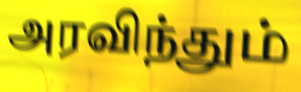
அரவிந்தும்